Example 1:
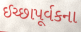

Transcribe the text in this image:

ઈચ્છાપૂર્વકના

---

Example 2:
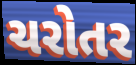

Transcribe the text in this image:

ચરોતર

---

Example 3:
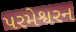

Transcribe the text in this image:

પરમેશ્વરન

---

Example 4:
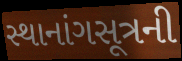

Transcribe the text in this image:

સ્થાનાંગસૂત્રની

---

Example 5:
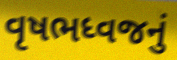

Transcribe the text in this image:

વૃષભધ્વજનું